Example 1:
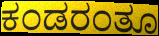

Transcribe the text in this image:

ಕಂಡರಂತೂ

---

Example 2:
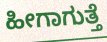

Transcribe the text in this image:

ಹೀಗಾಗುತ್ತೆ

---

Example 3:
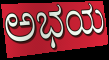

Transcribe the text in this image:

ಅಭಯ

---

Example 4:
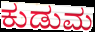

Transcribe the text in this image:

ಕುಡುಮ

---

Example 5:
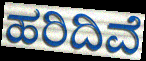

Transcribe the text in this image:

ಹರಿದಿವೆ